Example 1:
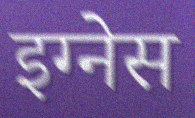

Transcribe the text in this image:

इग्नेस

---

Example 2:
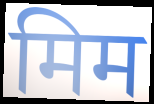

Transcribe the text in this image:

मिम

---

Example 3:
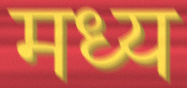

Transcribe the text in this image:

मध्य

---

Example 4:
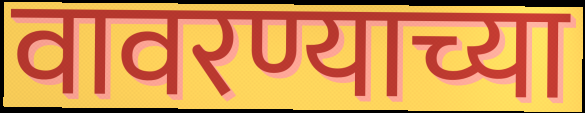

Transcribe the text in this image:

वावरण्याच्या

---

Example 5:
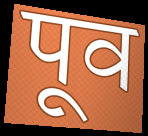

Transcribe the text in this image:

पूव